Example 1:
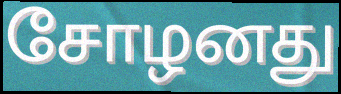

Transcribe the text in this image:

சோழனது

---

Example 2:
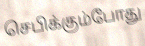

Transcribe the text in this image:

செபிக்கும்போது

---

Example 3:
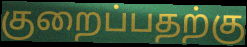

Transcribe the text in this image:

குறைப்பதற்கு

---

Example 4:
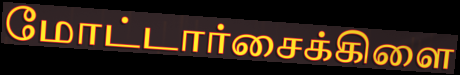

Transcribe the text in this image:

மோட்டார்சைக்கிளை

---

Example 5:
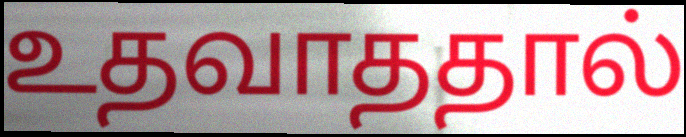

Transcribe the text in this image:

உதவாததால்